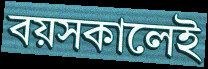
বয়সকালেই